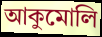
আকুমোলি